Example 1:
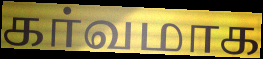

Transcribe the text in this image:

கர்வமாக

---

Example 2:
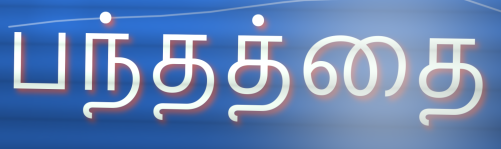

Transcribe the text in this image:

பந்தத்தை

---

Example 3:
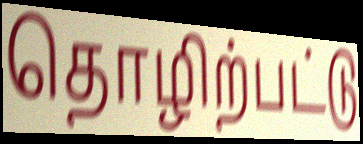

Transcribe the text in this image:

தொழிற்பட்டு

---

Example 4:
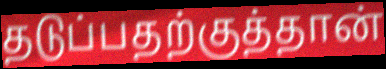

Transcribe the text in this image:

தடுப்பதற்குத்தான்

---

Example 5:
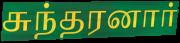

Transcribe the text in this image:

சுந்தரனார்